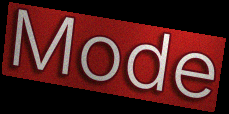
Mode